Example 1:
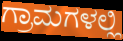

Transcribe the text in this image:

ಗ್ರಾಮಗಳಲ್ಲಿ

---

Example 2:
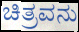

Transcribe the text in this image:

ಚಿತ್ರವನು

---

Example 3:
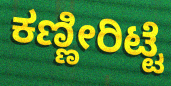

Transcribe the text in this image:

ಕಣ್ಣೀರಿಟ್ಟೆ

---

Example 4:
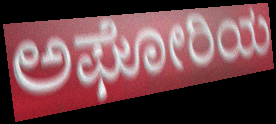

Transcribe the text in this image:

ಅಘೋರಿಯ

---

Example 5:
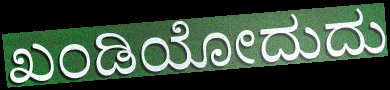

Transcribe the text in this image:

ಖಂಡಿಯೋದುದು